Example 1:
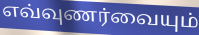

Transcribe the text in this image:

எவ்வுணர்வையும்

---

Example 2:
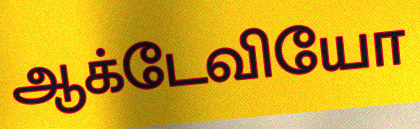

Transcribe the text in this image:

ஆக்டேவியோ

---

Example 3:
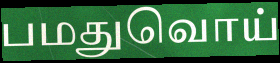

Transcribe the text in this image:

பமதுவொய்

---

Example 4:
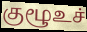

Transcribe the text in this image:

குழூஉச்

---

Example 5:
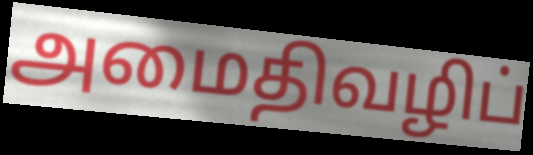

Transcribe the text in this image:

அமைதிவழிப்